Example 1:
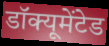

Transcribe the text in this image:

डॉक्यूमेंटेड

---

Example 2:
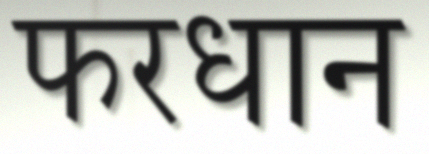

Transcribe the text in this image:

फरधान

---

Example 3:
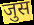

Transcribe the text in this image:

जुस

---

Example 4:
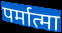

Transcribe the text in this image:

पर्मात्मा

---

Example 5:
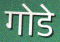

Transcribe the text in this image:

गोडे